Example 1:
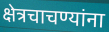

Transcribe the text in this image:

क्षेत्रचाचण्यांना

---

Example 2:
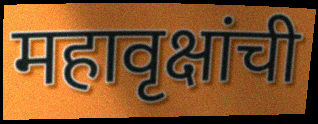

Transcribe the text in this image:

महावृक्षांची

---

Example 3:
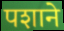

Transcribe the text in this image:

पशाने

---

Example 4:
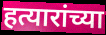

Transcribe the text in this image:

हत्यारांच्या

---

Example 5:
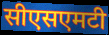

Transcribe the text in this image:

सीएसएमटी